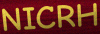
NICRH